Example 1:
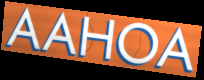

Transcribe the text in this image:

AAHOA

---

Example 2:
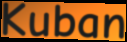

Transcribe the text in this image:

Kuban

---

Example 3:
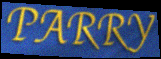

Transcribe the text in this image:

PARRY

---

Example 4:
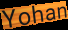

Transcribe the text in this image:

Yohan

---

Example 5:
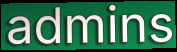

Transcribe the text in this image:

admins